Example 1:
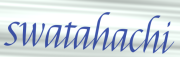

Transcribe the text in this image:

swatahachi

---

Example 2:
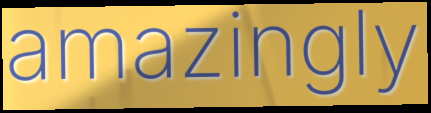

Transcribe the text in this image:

amazingly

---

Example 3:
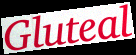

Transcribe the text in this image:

Gluteal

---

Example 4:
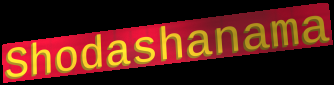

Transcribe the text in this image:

Shodashanama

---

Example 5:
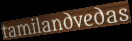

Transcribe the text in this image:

tamilandvedas